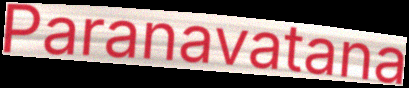
Paranavatana